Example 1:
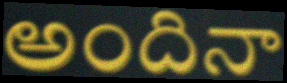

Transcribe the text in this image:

అందినా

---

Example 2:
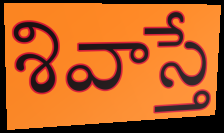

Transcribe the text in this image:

శివాస్తే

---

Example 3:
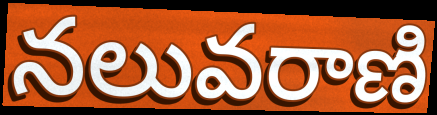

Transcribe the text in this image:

నలువరాణి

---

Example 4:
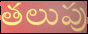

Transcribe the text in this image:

తలుపు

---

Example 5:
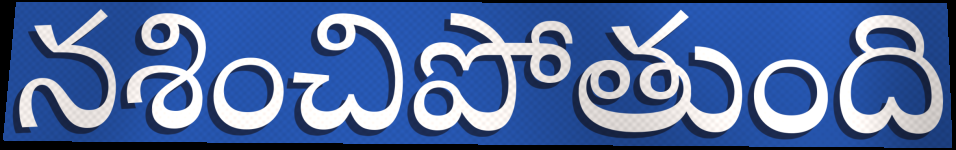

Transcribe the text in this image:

నశించిపోతుంది